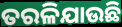
ତରଳିଯାଉଛି